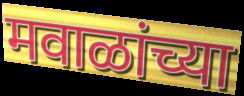
मवाळांच्या